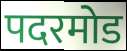
पदरमोड